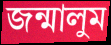
জন্মালুম